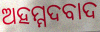
ଅହମ୍ମଦବାଦ